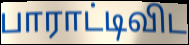
பாராட்டிவிட